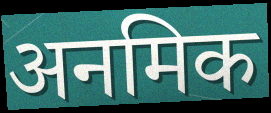
अनमिक